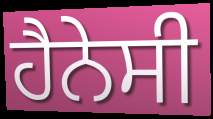
ਹੈਨੇਸੀ